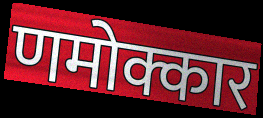
णमोक्कार